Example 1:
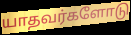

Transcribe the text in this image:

யாதவர்களோடு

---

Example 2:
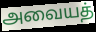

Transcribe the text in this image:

அவையத்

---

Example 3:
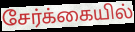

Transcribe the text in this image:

சேர்க்கையில்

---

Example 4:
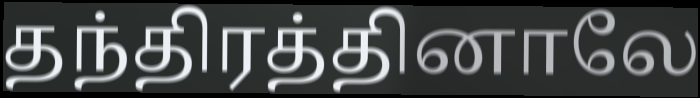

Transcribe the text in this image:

தந்திரத்தினாலே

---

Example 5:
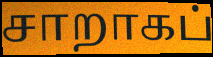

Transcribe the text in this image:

சாறாகப்